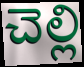
చెల్లి